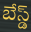
బేస్డ్